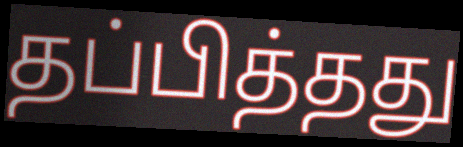
தப்பித்தது